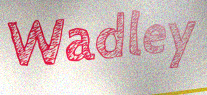
Wadley